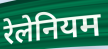
रेलेनियम